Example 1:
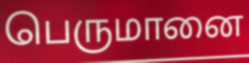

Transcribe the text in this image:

பெருமானை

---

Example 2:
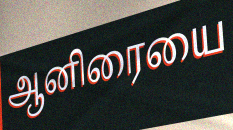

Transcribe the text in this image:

ஆனிரையை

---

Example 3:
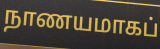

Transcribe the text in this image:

நாணயமாகப்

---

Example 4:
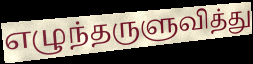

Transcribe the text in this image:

எழுந்தருளுவித்து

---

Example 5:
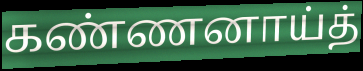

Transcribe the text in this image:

கண்ணனாய்த்